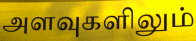
அளவுகளிலும்